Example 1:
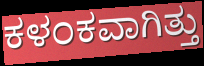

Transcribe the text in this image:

ಕಳಂಕವಾಗಿತ್ತು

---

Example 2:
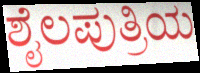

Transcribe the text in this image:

ಶೈಲಪುತ್ರಿಯ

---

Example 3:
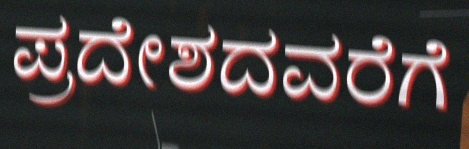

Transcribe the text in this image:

ಪ್ರದೇಶದವರೆಗೆ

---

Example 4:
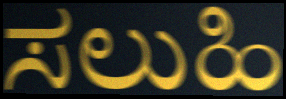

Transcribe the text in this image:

ಸಲುಹಿ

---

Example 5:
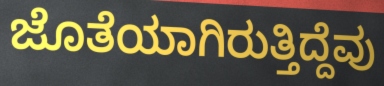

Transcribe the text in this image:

ಜೊತೆಯಾಗಿರುತ್ತಿದ್ದೆವು